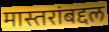
मास्तरांबद्दल